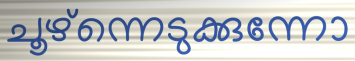
ചൂഴ്ന്നെടുക്കുന്നോ